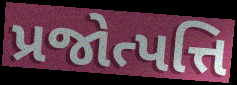
પ્રજોત્પત્તિ